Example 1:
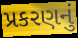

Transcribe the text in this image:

પ્રકરણનું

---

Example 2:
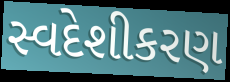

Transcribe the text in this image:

સ્વદેશીકરણ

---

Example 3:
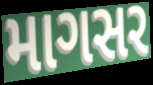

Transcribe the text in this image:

માગસર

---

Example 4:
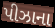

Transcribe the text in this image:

પીઝાના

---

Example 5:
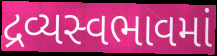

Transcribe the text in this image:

દ્રવ્યસ્વભાવમાં